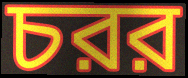
চরর